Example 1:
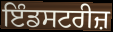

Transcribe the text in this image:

ਇੰਡਸਟਰੀਜ਼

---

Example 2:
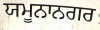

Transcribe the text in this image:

ਯਮੂਨਾਨਗਰ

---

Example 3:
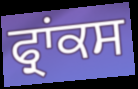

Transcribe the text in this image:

ਫ੍ਰਾਂਕਸ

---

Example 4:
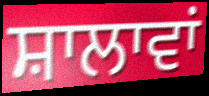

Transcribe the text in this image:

ਸ਼ਾਲਾਵਾਂ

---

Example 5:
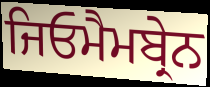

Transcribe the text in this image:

ਜਿਓਮੈਮਬ੍ਰੇਨ